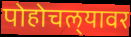
पोहोचल्यावर